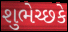
શુભેચ્છકે